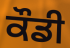
ਕੌਡੀ